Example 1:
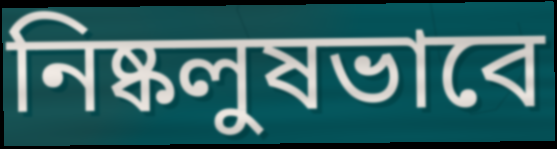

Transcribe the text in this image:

নিষ্কলুষভাবে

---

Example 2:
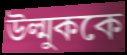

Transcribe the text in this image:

উল্মুককে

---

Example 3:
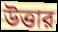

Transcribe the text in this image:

উত্তার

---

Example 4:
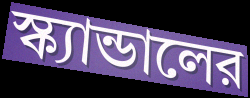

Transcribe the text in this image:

স্ক্যান্ডালের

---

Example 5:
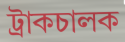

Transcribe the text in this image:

ট্রাকচালক